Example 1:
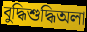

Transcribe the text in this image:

বুদ্ধিশুদ্ধিঅলা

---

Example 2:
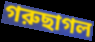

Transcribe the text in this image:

গরুছাগল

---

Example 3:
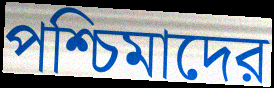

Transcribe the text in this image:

পশ্চিমাদের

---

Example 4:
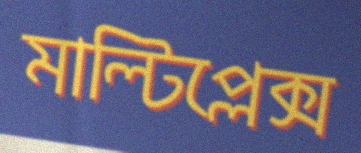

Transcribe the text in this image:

মাল্টিপ্লেক্স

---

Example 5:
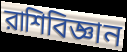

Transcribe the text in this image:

রাশিবিজ্ঞান